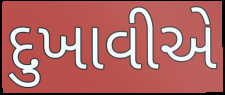
દુખાવીએ